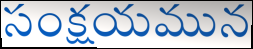
సంక్షయమున